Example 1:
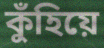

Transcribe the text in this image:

কুঁহিয়ে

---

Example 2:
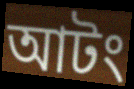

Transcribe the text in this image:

আটং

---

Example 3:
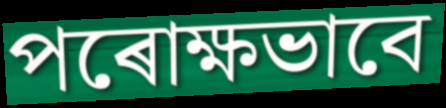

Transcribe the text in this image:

পৰোক্ষভাবে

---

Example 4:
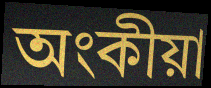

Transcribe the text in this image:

অংকীয়া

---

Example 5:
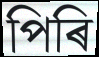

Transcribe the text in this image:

পিৰি